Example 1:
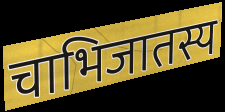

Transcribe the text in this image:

चाभिजातस्य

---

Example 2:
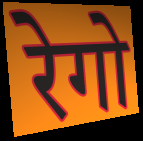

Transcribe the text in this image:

रेगो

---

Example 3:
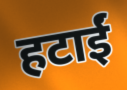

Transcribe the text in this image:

हटाईं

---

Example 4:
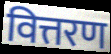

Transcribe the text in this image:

वित्तरण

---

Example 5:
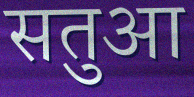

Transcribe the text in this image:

सतुआ